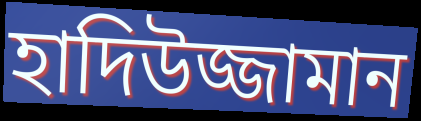
হাদিউজ্জামান